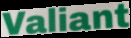
Valiant